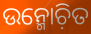
ଉନ୍ମୋଚ଼ିତ